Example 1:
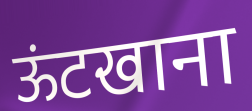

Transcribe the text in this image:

ऊंटखाना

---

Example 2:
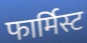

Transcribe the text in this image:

फार्मिस्ट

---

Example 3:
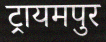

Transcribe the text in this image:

ट्रायमपुर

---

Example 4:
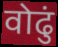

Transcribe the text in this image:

वोढुं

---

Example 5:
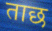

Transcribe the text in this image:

ताछ